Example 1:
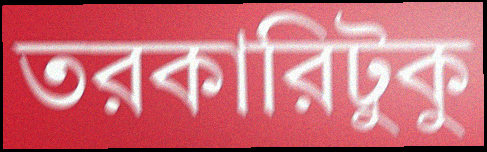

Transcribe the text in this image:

তরকারিটুকু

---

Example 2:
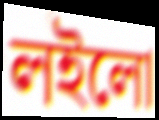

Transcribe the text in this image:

লইলো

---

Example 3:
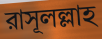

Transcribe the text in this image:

রাসূলল্লাহ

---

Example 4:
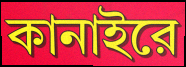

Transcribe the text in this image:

কানাইরে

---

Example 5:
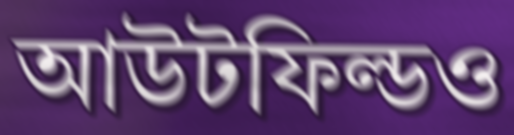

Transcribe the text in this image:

আউটফিল্ডও